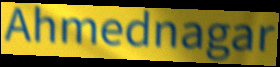
Ahmednagar